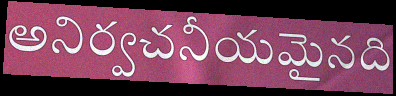
అనిర్వచనీయమైనది